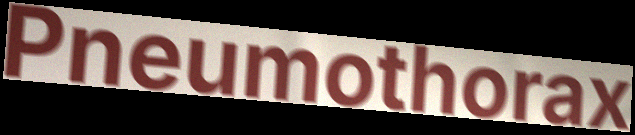
Pneumothorax